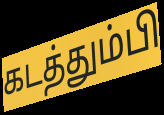
கடத்தும்பி